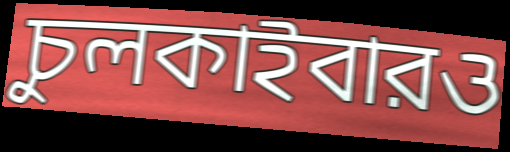
চুলকাইবারও